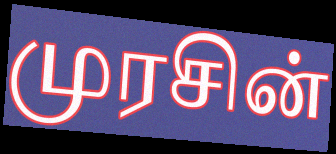
முரசின்